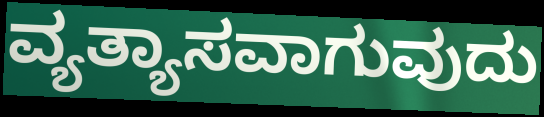
ವ್ಯತ್ಯಾಸವಾಗುವುದು